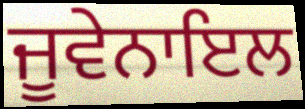
ਜੂਵੇਨਾਇਲ